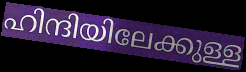
ഹിന്ദിയിലേക്കുള്ള